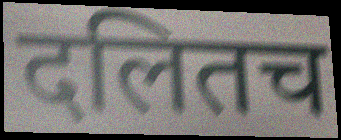
दलितच